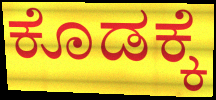
ಕೊಡಕ್ಕೆ